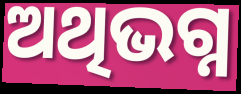
ଅଥିଭଗ୍ନ